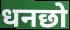
धनछो